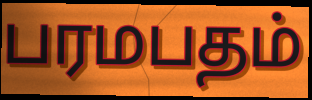
பரமபதம்